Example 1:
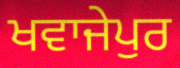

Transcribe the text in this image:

ਖਵਾਜੇਪੁਰ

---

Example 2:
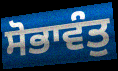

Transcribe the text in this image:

ਸੋਭਾਵੰਤੁ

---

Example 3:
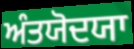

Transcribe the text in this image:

ਅੰਤਯੋਦਯਾ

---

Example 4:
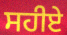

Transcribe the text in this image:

ਸਹੀਏ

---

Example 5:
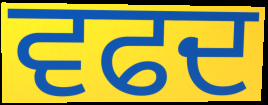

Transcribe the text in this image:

ਵਫਦ